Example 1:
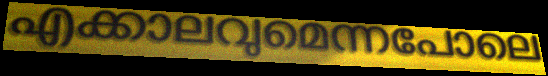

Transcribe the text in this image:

എക്കാലവുമെന്നപോലെ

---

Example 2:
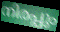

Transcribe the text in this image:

നിരപ്പും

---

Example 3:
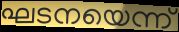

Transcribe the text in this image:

ഘടനയെന്ന്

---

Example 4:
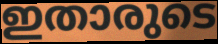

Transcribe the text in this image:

ഇതാരുടെ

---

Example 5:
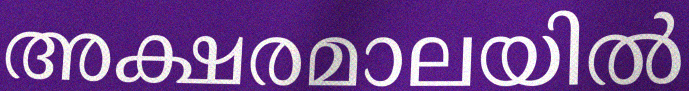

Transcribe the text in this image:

അക്ഷരമാലയിൽ